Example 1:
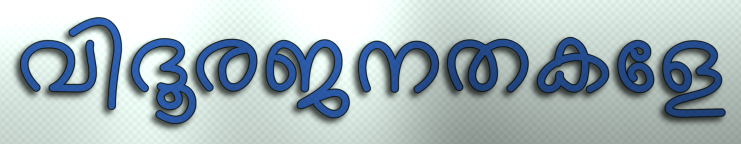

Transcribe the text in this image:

വിദൂരജനതകളേ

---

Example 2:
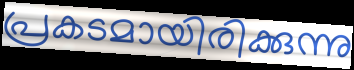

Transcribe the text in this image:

പ്രകടമായിരിക്കുന്നു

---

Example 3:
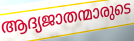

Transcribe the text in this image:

ആദ്യജാതന്മാരുടെ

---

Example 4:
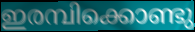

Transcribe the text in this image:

ഇരമ്പിക്കൊണ്ടു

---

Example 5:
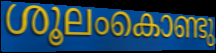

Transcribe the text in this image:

ശൂലംകൊണ്ടു